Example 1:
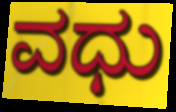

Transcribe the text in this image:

ವಧು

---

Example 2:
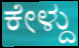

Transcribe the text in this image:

ಕೇಳ್ದು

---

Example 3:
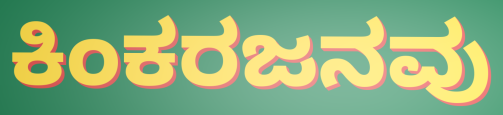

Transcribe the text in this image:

ಕಿಂಕರಜನವು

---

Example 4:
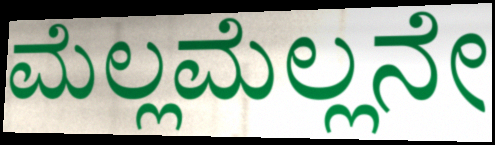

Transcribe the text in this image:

ಮೆಲ್ಲಮೆಲ್ಲನೇ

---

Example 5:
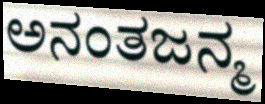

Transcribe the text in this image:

ಅನಂತಜನ್ಮ